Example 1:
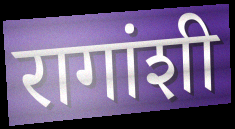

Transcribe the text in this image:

रागांशी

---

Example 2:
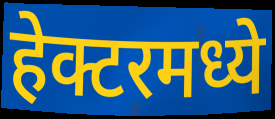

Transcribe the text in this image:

हेक्टरमध्ये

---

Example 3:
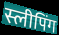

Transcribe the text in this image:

स्लीपिंग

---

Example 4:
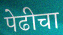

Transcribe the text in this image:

पेढीचा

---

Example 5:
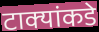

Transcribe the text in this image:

टाक्यांकडे